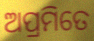
ଅପ୍ରମିତେ